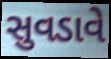
સુવડાવે